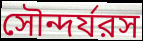
সৌন্দর্যরস